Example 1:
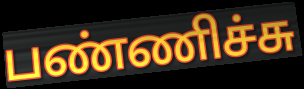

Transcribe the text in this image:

பண்ணிச்சு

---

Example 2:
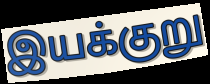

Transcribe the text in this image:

இயக்குறு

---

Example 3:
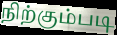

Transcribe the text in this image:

நிற்கும்படி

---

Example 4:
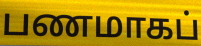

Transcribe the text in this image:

பணமாகப்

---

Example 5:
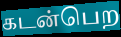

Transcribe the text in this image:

கடன்பெற